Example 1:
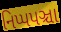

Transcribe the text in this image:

નિપ્પપઞ્ચા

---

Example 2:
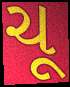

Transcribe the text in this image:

ચૂ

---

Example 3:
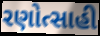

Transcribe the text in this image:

રણોત્સાહી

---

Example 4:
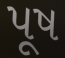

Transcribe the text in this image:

પૂષ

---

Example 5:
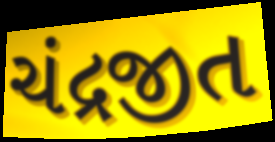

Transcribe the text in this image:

ચંદ્રજીત